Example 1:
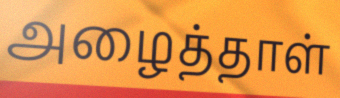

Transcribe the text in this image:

அழைத்தாள்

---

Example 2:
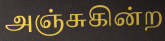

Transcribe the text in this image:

அஞ்சுகின்ற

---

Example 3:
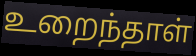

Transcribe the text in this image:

உறைந்தாள்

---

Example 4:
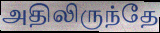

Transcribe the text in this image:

அதிலிருந்தே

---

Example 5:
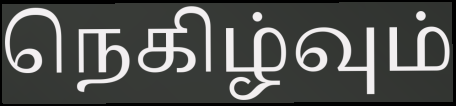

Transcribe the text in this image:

நெகிழ்வும்